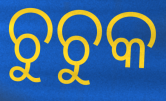
ଚୁଚୁକ